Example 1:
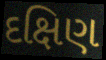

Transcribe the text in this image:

દક્ષિણ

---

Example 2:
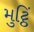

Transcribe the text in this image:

મુટ્ઠિં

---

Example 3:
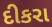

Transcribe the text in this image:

દીકરા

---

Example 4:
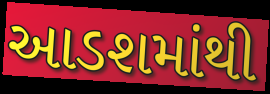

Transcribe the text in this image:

આડશમાંથી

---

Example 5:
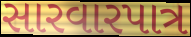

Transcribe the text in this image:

સારવારપાત્ર